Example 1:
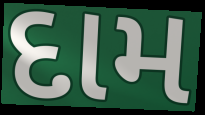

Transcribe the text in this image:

દામ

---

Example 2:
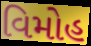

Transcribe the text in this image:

વિમોહ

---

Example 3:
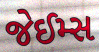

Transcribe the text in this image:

જેઈમ્સ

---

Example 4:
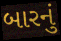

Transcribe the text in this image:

બારનું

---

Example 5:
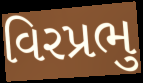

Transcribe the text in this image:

વિરપ્રભુ